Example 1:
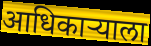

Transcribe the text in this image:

आधिकाऱ्याला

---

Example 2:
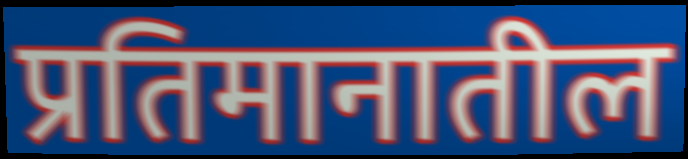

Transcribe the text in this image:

प्रतिमानातील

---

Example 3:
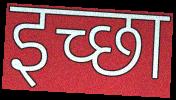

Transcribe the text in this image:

इच्छा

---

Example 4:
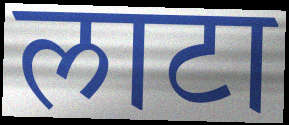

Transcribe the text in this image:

लाटा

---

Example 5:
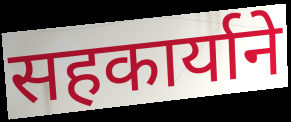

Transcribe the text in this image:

सहकार्याने